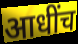
आधींच